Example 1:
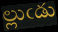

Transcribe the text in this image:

ల్లుఁడు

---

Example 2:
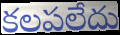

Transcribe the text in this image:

కలపలేదు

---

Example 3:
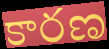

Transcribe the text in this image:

కారణ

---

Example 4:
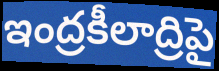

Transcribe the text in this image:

ఇంద్రకీలాద్రిపై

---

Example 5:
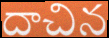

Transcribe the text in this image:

దాచిన